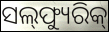
ସଲ୍‌ଫ୍ୟୁରିକ୍